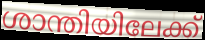
ശാന്തിയിലേക്ക്